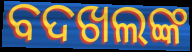
ବଦଖଲଙ୍କ